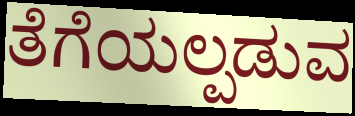
ತೆಗೆಯಲ್ಪಡುವ